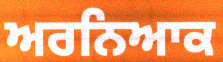
ਅਰਨਿਆਕ